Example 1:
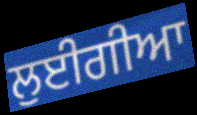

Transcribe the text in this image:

ਲੁਈਗੀਆ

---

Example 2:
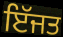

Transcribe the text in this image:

ਇੱਜਤ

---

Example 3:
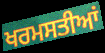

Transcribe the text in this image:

ਖਰਮਸਤੀਆਂ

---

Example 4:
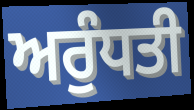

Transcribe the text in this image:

ਅਰੁੰਧਤੀ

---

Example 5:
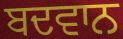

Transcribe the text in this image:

ਬਦਵਾਨ